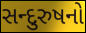
સન્દુરુષનો